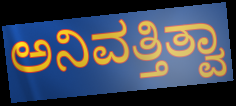
ಅನಿವತ್ತಿತ್ವಾ